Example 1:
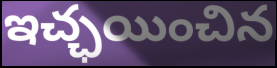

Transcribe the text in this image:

ఇచ్ఛయించిన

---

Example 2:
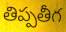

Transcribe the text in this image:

తిప్పతీగ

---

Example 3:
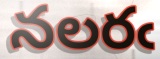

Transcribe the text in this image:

నలరఁ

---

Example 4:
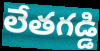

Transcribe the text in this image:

లేతగడ్డి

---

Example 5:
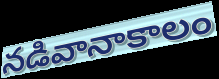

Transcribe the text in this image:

నడివానాకాలం